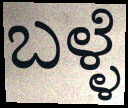
ಬಳ್ಳೆ